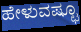
ಹೇಳುವಷ್ಟೂ